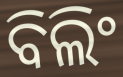
ବିଲିଂ